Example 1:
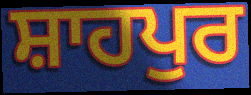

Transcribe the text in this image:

ਸ਼ਾਹਪੁਰ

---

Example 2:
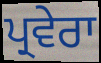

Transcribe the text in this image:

ਪ੍ਰਵੇਰਾ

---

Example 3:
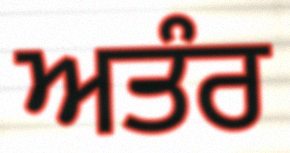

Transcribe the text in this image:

ਅਤੰਰ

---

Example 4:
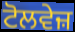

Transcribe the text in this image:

ਟੋਲਵੇਜ਼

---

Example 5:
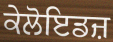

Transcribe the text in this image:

ਕੇਲੋਇਡਜ਼